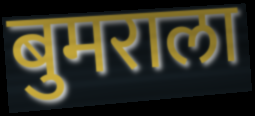
बुमराला